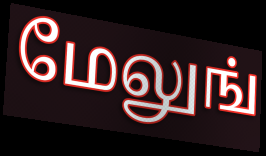
மேலுங்